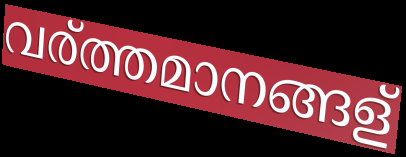
വര്ത്തമാനങ്ങള്